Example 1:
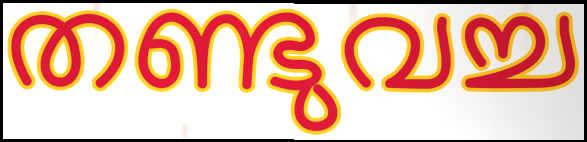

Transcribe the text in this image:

തണ്ടുവച്ച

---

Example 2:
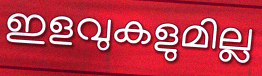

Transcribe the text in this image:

ഇളവുകളുമില്ല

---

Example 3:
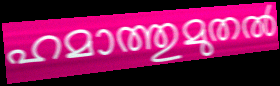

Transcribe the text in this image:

ഹമാത്തുമുതൽ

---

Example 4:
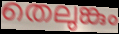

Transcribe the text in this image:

തെലുങ്കും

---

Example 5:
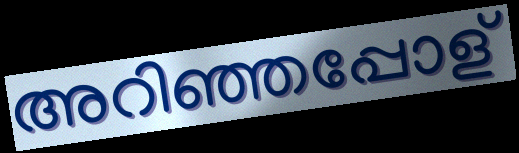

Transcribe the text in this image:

അറിഞ്ഞപ്പോള്